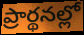
ప్రార్థనల్లో